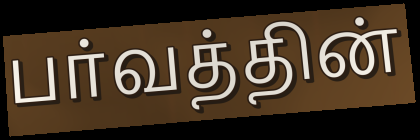
பர்வத்தின்